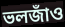
ভলজাঁও